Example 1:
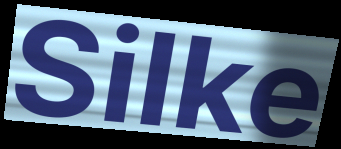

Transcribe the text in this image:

Silke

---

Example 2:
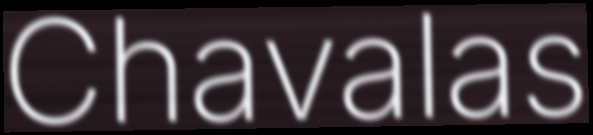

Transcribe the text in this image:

Chavalas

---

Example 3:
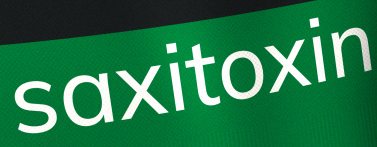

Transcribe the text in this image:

saxitoxin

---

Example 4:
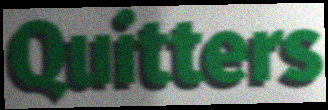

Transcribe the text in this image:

Quitters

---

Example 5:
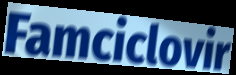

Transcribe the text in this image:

Famciclovir